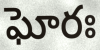
ఘోరః